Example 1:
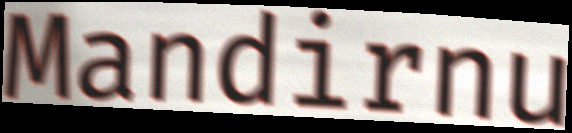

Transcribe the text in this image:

Mandirnu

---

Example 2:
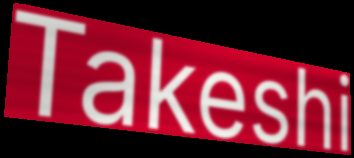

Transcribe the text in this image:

Takeshi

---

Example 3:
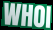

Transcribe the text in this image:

WHOI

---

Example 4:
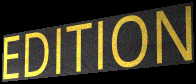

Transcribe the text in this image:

EDITION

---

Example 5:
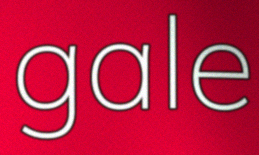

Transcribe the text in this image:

gale